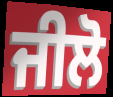
ਜੀਲੋ